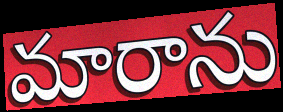
మారాను